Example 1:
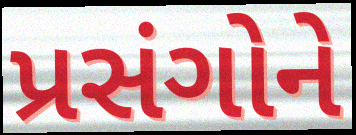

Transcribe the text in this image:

પ્રસંગોને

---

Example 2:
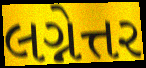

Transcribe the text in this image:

લગ્નેત્તર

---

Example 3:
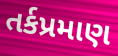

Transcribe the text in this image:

તર્કપ્રમાણ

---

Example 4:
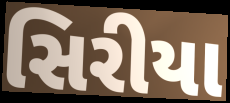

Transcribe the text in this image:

સિરીયા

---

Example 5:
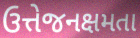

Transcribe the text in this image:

ઉત્તેજનક્ષમતા